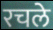
रचले